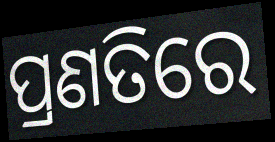
ପ୍ରଣତିରେ